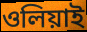
ওলিয়াই